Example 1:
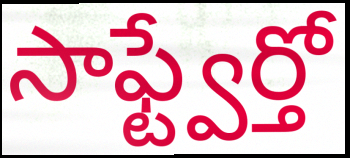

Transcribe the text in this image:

సాఫ్ట్వేర్తో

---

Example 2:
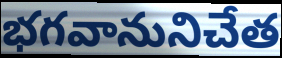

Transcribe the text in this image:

భగవానునిచేత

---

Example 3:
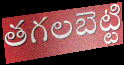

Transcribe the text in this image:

తగలబెట్టి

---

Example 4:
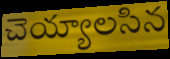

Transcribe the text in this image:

చెయ్యాలసిన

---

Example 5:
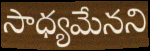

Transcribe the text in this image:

సాధ్యమేనని